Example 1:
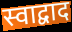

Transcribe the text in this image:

स्वाद्वाद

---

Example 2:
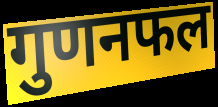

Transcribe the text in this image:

गुणनफल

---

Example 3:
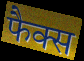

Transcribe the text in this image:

फैक्स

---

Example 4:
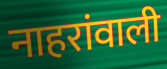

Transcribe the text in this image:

नाहरांवाली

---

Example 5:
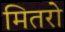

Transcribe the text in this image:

मितरो